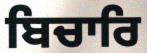
ਬਿਚਾਰਿ